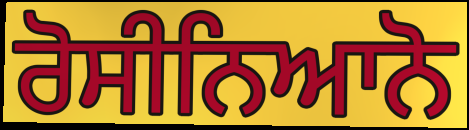
ਰੋਸੀਨਿਆਨੋ